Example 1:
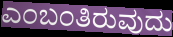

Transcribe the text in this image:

ಎಂಬಂತಿರುವುದು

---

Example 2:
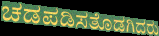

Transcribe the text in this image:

ಚಡಪಡಿಸತೊಡಗಿದರು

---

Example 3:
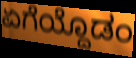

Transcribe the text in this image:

ಏಗೆಯ್ದೊಡಂ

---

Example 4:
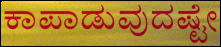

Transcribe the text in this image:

ಕಾಪಾಡುವುದಷ್ಟೇ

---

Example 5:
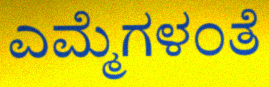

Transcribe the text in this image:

ಎಮ್ಮೆಗಳಂತೆ